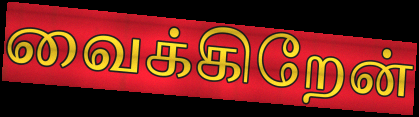
வைக்கிறேன்